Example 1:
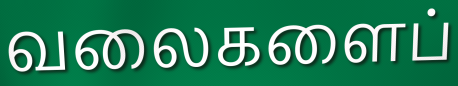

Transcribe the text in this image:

வலைகளைப்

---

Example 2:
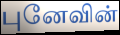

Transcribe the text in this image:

புனேவின்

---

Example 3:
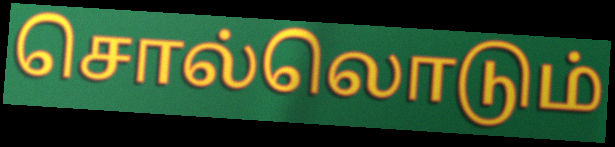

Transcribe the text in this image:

சொல்லொடும்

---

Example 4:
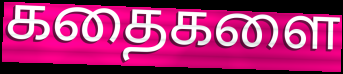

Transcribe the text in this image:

கதைகளை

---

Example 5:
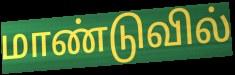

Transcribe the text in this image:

மாண்டுவில்